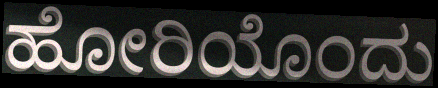
ಹೋರಿಯೊಂದು